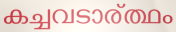
കച്ചവടാര്ത്ഥം